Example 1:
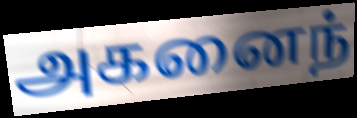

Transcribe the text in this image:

அகனைந்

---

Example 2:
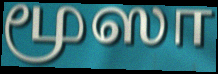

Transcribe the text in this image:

மூஸா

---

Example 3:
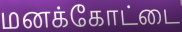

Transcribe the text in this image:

மனக்கோட்டை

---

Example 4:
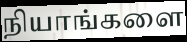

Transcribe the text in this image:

நியாங்களை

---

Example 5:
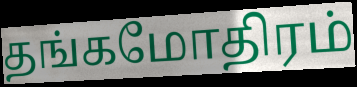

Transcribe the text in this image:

தங்கமோதிரம்